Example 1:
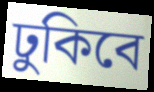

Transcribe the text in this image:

ঢুকিবে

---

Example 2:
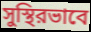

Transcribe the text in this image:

সুস্থিরভাবে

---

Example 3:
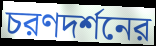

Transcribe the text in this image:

চরণদর্শনের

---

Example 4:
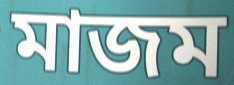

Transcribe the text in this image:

মাজম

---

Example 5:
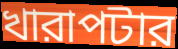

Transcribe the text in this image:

খারাপটার